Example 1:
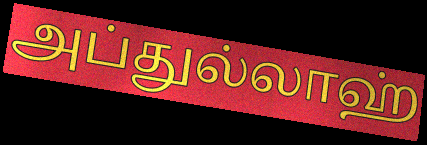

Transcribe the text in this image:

அப்துல்லாஹ்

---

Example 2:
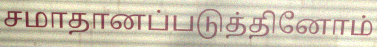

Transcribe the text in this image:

சமாதானப்படுத்தினோம்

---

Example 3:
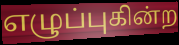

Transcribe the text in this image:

எழுப்புகின்ற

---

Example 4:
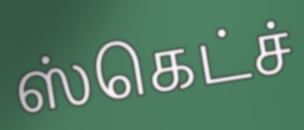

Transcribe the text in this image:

ஸ்கெட்ச்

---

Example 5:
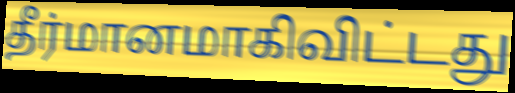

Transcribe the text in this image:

தீர்மானமாகிவிட்டது